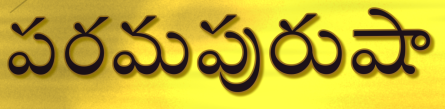
పరమపురుషా